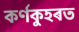
কৰ্ণকুহৰত